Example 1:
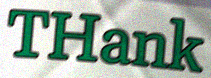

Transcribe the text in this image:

THank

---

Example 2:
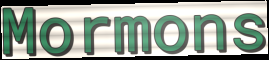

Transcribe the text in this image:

Mormons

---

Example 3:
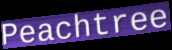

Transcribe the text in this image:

Peachtree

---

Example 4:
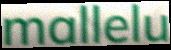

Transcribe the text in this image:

mallelu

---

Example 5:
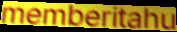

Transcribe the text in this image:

memberitahu